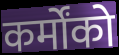
कर्मोंको